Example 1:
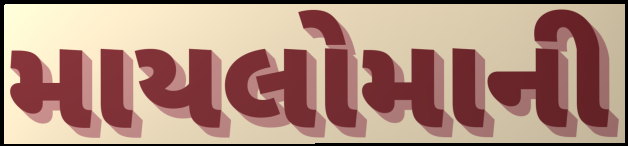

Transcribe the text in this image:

માયલોમાની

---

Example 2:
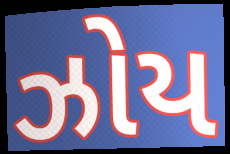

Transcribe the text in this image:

ઝોય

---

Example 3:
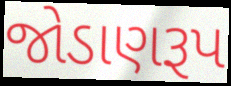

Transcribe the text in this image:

જોડાણરૂપ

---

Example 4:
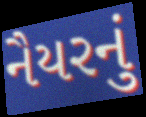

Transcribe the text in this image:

નૈયરનું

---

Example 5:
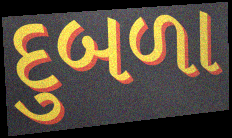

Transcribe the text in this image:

દુબળા